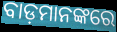
ବାଡ଼ମାନଙ୍କରେ